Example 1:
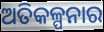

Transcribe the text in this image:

ଅତିକଳ୍ପନାର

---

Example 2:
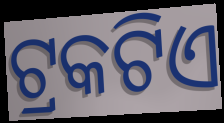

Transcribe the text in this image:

ଟ୍ରକଟିଏ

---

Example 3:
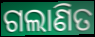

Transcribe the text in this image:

ଗଲାଣିତ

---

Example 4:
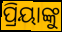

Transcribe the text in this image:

ପ୍ରିୟାଙ୍କୁ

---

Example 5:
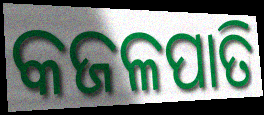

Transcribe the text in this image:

କଜଳପାତି